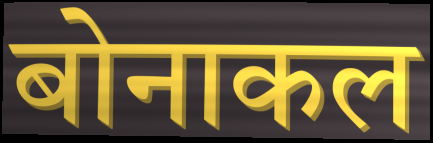
बोनाकल